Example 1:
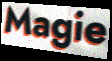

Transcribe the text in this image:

Magie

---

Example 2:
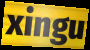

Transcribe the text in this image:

xingu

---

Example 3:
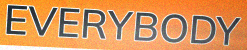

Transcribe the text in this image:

EVERYBODY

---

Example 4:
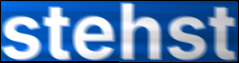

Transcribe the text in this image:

stehst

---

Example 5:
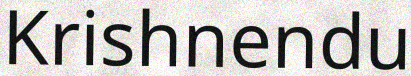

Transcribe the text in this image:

Krishnendu